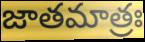
జాతమాత్రః